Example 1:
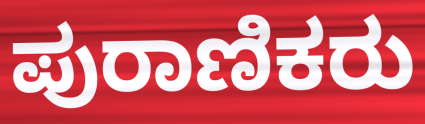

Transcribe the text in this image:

ಪುರಾಣಿಕರು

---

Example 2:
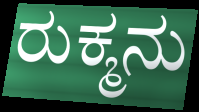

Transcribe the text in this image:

ರುಕ್ಮನು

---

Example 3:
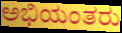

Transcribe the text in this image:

ಅಭಿಯಂತರು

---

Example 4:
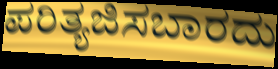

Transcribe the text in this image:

ಪರಿತ್ಯಜಿಸಬಾರದು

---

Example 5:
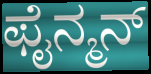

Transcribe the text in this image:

ಫೈನ್ಮನ್